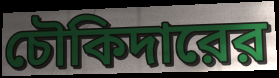
চৌকিদারের